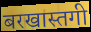
बरखास्तगी